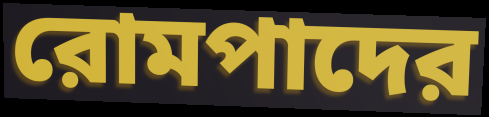
রোমপাদের